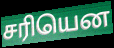
சரியென